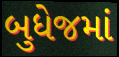
બુધેજમાં